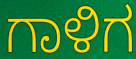
ಗಾಳಿಗ